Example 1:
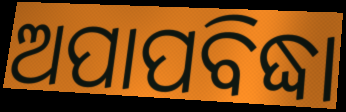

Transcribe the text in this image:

ଅପାପବିଦ୍ଧା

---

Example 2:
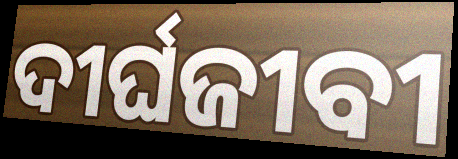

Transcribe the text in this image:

ଦୀର୍ଘଜୀବୀ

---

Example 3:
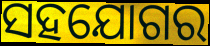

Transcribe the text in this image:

ସହଯୋଗର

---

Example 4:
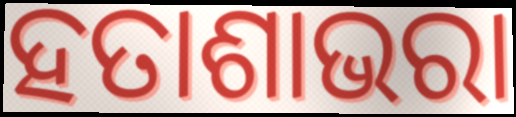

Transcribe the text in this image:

ହତାଶାଭରା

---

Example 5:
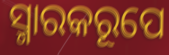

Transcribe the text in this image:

ସ୍ମାରକରୂପେ